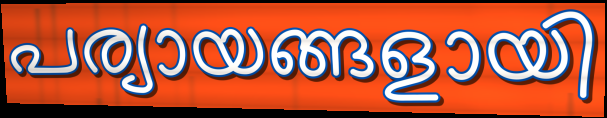
പര്യായങ്ങളായി